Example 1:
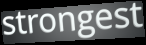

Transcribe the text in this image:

strongest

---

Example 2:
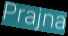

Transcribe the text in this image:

Prajna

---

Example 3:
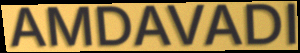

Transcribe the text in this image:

AMDAVADI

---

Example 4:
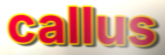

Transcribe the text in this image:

callus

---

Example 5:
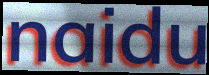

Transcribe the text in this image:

naidu